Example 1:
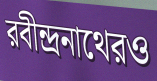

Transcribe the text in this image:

রবীন্দ্রনাথেরও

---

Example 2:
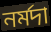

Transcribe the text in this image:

নর্মদা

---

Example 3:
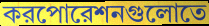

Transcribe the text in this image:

করপোরেশনগুলোতে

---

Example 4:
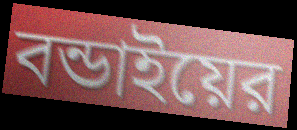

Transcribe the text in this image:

বন্ডাইয়ের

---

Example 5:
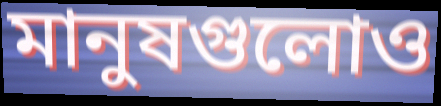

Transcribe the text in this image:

মানুষগুলোও